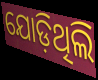
ଯୋଡ଼ିଥିଲି